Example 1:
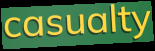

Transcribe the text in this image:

casualty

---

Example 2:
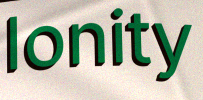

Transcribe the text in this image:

Ionity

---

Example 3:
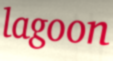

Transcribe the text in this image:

lagoon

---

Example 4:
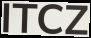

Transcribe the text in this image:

ITCZ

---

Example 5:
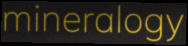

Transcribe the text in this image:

mineralogy